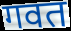
गवत